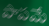
పాపమే